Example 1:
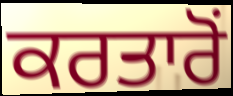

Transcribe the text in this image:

ਕਰਤਾਰੋਂ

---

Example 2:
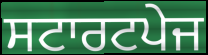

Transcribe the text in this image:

ਸਟਾਰਟਪੇਜ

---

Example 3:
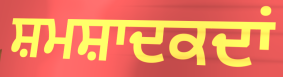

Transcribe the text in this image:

ਸ਼ਮਸ਼ਾਦਕਦਾਂ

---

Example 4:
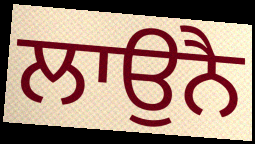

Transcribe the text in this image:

ਲਾਉਨੈ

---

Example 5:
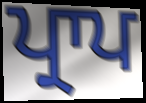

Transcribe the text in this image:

ਪ੍ਰਾਪ